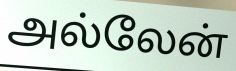
அல்லேன்